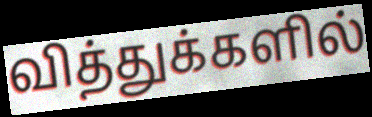
வித்துக்களில்